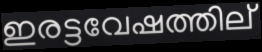
ഇരട്ടവേഷത്തില്